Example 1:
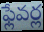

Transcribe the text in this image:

ఫ్లేవర్ల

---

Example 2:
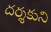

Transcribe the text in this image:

దర్శకుని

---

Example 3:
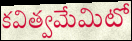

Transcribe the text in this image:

కవిత్వమేమిటో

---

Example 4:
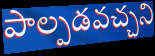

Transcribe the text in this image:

పాల్పడవచ్చని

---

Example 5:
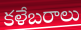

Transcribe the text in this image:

కళేబరాలు